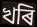
খৰি